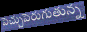
పెచ్చుపెరుగుతున్న